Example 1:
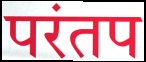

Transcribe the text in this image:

परंतप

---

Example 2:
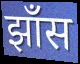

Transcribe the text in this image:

झाँस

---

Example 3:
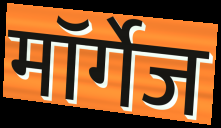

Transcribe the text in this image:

मॉर्गेज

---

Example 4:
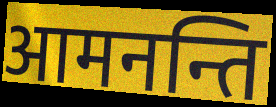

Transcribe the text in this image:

आमनन्ति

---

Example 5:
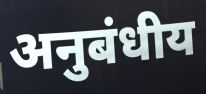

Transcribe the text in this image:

अनुबंधीय